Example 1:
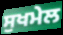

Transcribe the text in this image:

ਸੁਖਮੇਲ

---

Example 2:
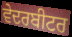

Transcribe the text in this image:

ਵੇਦਰਬੀਟਰ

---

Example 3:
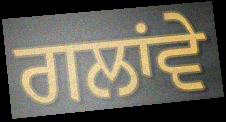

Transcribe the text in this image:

ਗਲਾਂਵੇ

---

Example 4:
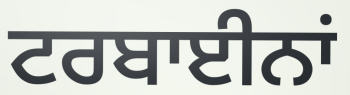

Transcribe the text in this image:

ਟਰਬਾਈਨਾਂ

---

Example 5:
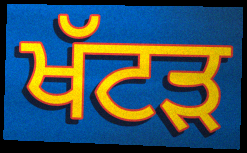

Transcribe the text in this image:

ਖੱਟੜ